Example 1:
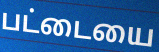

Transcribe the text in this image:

பட்டையை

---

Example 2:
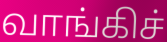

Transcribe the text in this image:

வாங்கிச்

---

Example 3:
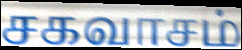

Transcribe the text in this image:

சகவாசம்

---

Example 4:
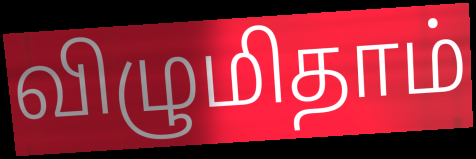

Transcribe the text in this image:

விழுமிதாம்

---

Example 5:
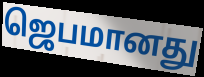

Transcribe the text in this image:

ஜெபமானது